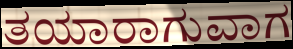
ತಯಾರಾಗುವಾಗ